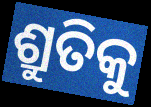
ଶ୍ରୁତିକୁ